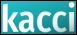
kacci